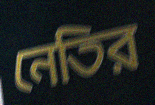
নেতির